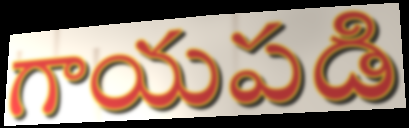
గాయపడి